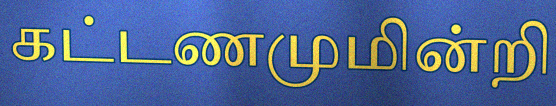
கட்டணமுமின்றி